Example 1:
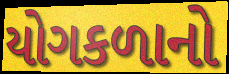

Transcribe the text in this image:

યોગકળાનો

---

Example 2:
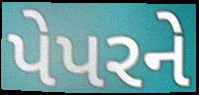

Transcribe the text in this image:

પેપરને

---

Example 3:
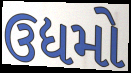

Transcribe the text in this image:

ઉદ્યમો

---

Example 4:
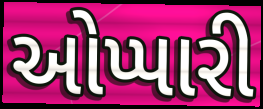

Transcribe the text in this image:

ઓપ્પારી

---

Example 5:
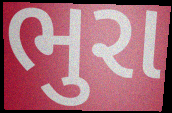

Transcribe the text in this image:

ભુરા